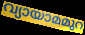
വ്യായാമമുറ